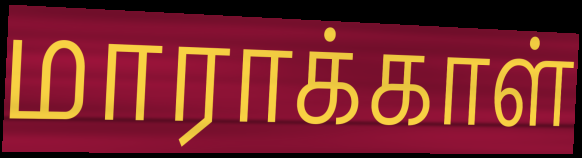
மாராக்காள்